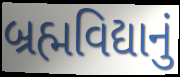
બ્રહ્મવિદ્યાનું